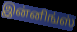
இன்னிங்ஸ்